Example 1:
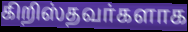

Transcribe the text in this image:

கிறிஸ்தவர்களாக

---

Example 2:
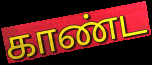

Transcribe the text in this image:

காண்ட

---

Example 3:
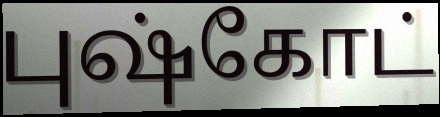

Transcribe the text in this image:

புஷ்கோட்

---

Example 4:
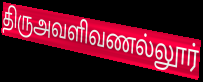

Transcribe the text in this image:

திருஅவளிவணல்லூர்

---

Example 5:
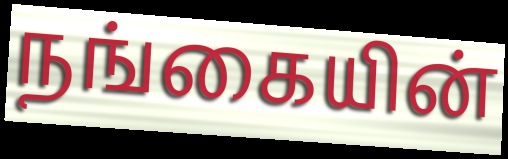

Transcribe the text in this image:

நங்கையின்